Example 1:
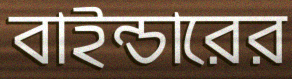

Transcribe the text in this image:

বাইন্ডারের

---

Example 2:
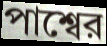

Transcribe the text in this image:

পাশ্বের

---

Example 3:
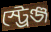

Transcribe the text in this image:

স্ট্রেঞ্জ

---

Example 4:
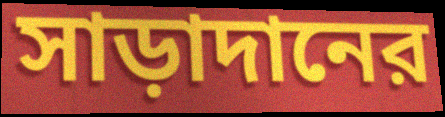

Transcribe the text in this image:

সাড়াদানের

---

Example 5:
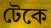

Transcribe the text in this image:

টেকে